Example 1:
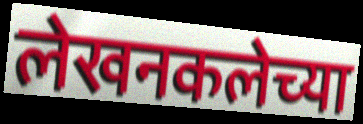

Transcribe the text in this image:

लेखनकलेच्या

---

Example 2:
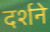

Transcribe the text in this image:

दर्शने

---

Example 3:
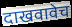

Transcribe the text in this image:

दाखवावेच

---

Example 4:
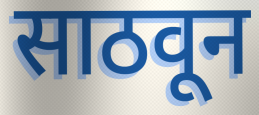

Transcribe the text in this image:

साठवून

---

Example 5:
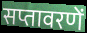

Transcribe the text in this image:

सप्तावरणें